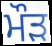
ਮੌਡ਼